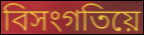
বিসংগতিয়ে